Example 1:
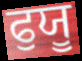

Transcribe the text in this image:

ਫੁਯੂ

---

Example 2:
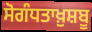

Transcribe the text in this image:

ਸੋਗੰਧਤਾਖ਼ੁਸ਼ਬੂ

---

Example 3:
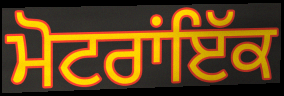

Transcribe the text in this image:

ਮੋਟਰਾਂਇੱਕ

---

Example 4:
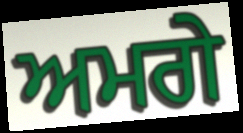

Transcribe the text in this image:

ਅਮਗੇ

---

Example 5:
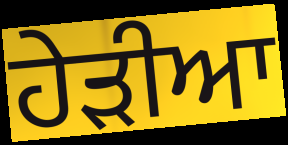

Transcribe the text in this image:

ਹੇੜੀਆ